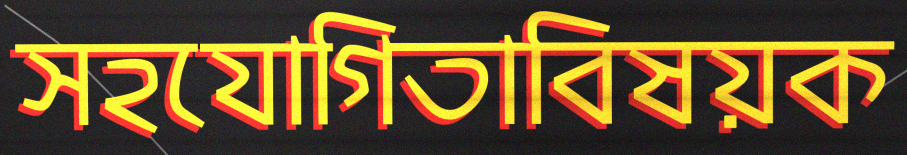
সহযোগিতাবিষয়ক